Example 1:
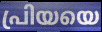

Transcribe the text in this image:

പ്രിയയെ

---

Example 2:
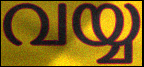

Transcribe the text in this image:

വയ്യ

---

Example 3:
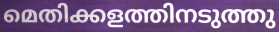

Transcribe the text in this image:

മെതിക്കളത്തിനടുത്തു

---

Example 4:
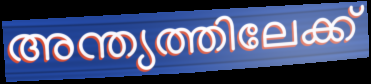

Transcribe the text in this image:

അന്ത്യത്തിലേക്ക്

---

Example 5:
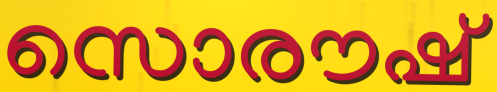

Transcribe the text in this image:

സൊരൗഷ്